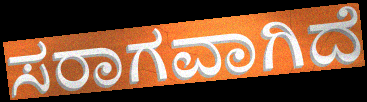
ಸರಾಗವಾಗಿದೆ